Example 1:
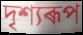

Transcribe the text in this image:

দৃশ্যৰূপ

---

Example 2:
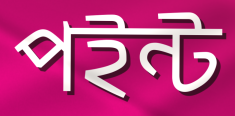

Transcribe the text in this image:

পইন্ট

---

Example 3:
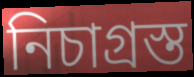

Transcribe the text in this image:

নিচাগ্ৰস্ত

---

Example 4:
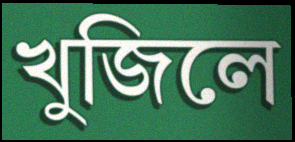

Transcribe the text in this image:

খুজিলে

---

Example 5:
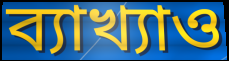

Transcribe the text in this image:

ব্যাখ্যাও